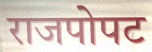
राजपोपट